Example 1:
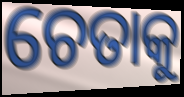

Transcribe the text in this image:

ଚେତାକୁ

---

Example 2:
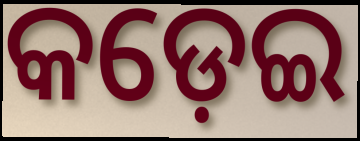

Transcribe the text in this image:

କଡ଼େଇ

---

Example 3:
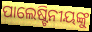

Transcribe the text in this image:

ପାଲେଷ୍ଟିନୀୟଙ୍କୁ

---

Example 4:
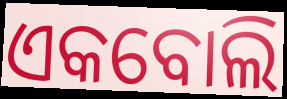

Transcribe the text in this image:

ଏକବୋଲି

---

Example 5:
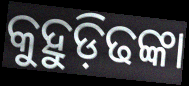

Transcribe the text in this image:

କୁହୁଡ଼ିଢଙ୍କା